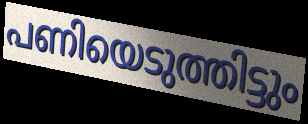
പണിയെടുത്തിട്ടും